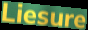
Liesure